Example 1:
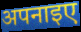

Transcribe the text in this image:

अपनाइए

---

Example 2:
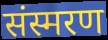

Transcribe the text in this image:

संस्मरण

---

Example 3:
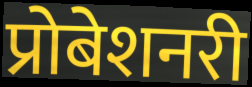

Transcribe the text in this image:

प्रोबेशनरी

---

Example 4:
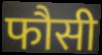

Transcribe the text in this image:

फौसी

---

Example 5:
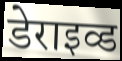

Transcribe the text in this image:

डेराइव्ड